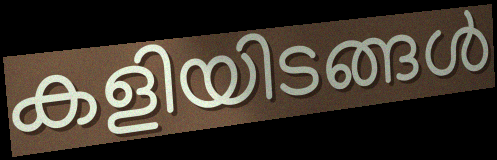
കളിയിടങ്ങൾ